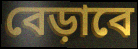
বেড়াবে